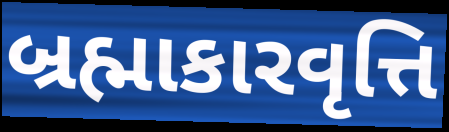
બ્રહ્માકારવૃત્તિ